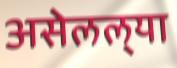
असेलल्या